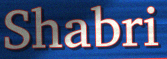
Shabri